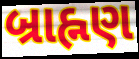
બ્રાહ્નણ